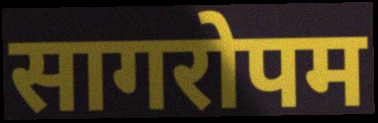
सागरोपम